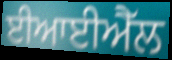
ਈਆਈਐੱਲ